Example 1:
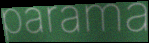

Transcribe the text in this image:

parama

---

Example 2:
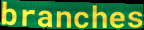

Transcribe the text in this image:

branches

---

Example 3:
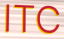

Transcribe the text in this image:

ITC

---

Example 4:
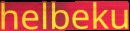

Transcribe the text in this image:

helbeku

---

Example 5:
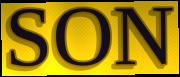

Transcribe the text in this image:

SON